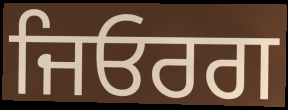
ਜਿਓਰਗ